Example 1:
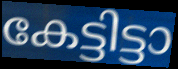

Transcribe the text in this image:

കേട്ടിട്ടാ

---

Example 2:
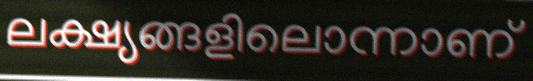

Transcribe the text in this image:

ലക്ഷ്യങ്ങളിലൊന്നാണ്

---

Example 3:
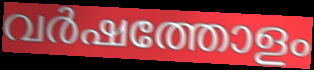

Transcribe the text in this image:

വർഷത്തോളം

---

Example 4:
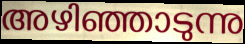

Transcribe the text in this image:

അഴിഞ്ഞാടുന്നു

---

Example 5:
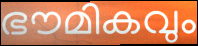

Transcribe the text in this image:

ഭൗമികവും